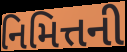
નિમિત્તની